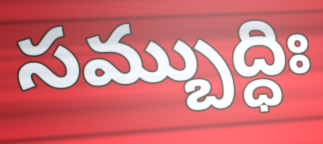
సమ్బుద్ధిః